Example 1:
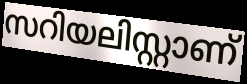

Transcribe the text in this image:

സറിയലിസ്റ്റാണ്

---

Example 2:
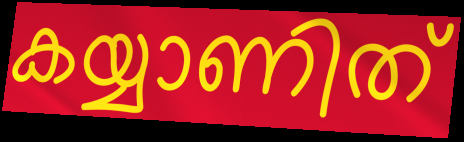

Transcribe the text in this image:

കയ്യാണിത്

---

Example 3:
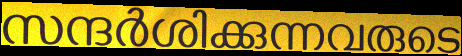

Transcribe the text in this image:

സന്ദർശിക്കുന്നവരുടെ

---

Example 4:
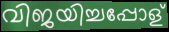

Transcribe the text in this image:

വിജയിച്ചപ്പോള്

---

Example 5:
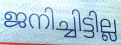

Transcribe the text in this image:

ജനിച്ചിട്ടില്ല